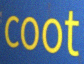
coot